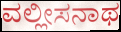
ವಲ್ಲೀಸನಾಥ